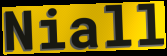
Niall